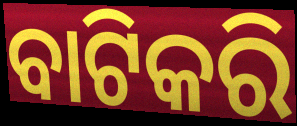
ବାଟିକରି